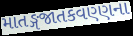
માતઙ્ગજાતકવણ્ણના